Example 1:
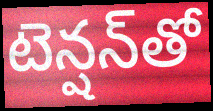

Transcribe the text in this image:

టెన్షన్‌తో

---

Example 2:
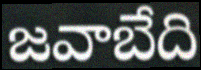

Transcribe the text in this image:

జవాబేది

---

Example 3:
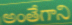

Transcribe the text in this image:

అంతేగాని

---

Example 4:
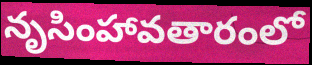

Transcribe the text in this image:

నృసింహావతారంలో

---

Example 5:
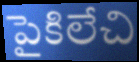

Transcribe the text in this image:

పైకిలేచి